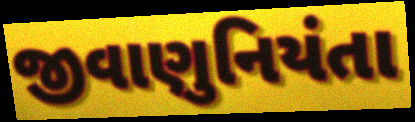
જીવાણુનિયંતા